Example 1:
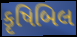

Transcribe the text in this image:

કૃષિબિલ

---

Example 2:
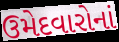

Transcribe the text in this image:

ઉમેદવારોનાં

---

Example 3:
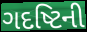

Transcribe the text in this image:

ગદષ્ટિની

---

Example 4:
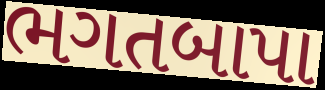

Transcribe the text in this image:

ભગતબાપા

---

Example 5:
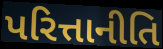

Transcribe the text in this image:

પરિત્તાનીતિ